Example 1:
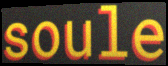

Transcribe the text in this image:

soule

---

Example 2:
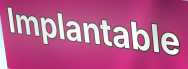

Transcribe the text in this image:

Implantable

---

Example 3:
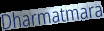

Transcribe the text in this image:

Dharmatmara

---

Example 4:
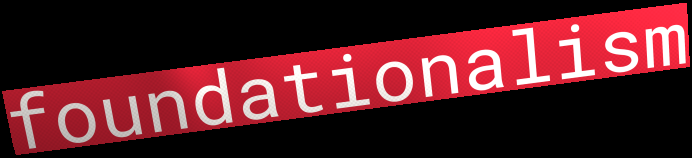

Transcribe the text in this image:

foundationalism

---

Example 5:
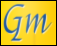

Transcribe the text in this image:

Gm